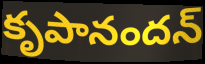
కృపానందన్